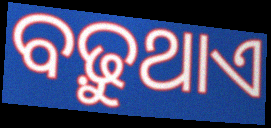
ବଢ଼ୁଥାଏ